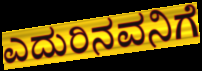
ಎದುರಿನವನಿಗೆ